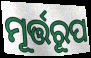
ମୂର୍ତ୍ତରୂପ